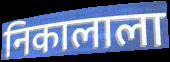
निकालाला